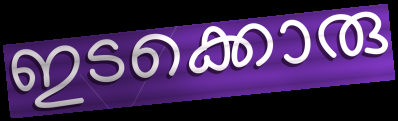
ഇടക്കൊരു